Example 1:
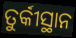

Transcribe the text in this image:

ତୁର୍କୀସ୍ଥାନ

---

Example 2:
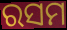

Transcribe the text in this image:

ରସମ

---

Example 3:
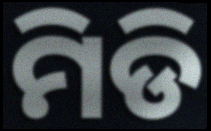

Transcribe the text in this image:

ମିଡି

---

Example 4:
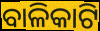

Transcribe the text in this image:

ବାଳିକାଟି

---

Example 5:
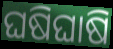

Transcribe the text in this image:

ଘଷିଘାଷି